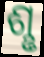
ଶୢ